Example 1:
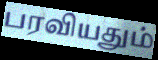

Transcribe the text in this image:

பரவியதும்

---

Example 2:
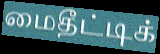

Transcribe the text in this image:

மைதீட்டிக்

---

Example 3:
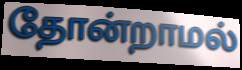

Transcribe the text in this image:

தோன்றாமல்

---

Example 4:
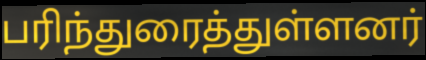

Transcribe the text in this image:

பரிந்துரைத்துள்ளனர்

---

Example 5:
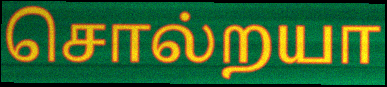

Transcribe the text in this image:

சொல்றயா